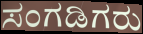
ಸಂಗಡಿಗರು